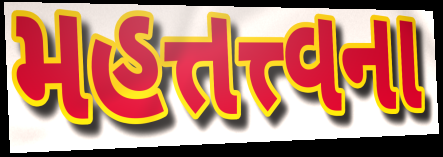
મહત્તત્ત્વના